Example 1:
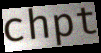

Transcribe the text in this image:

chpt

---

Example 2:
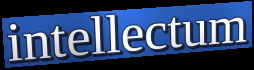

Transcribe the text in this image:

intellectum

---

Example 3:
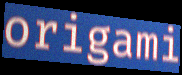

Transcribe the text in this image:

origami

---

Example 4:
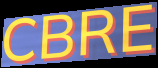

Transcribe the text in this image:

CBRE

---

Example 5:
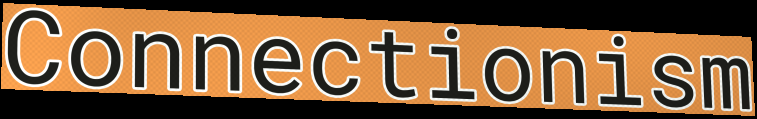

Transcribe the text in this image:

Connectionism